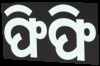
ଫିଫି